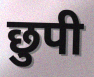
छुपी